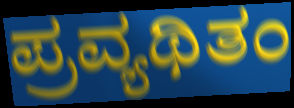
ಪ್ರವ್ಯಥಿತಂ